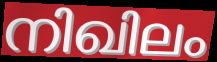
നിഖിലം